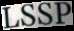
LSSP